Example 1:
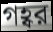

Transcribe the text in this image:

গহ্বর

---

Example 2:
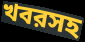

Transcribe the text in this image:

খবরসহ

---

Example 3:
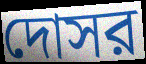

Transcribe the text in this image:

দোসর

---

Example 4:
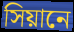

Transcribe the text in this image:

সিয়ানে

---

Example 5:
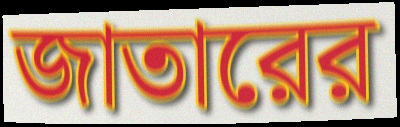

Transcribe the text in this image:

জাতারের